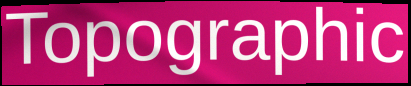
Topographic